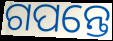
ଗପନ୍ତେ